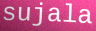
sujala